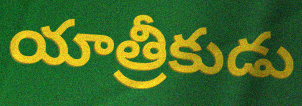
యాత్రీకుడు